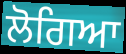
ਲੋਗਿਆ